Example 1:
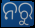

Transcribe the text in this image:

ନରୁ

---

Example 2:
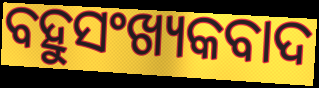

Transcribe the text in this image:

ବହୁସଂଖ୍ୟକବାଦ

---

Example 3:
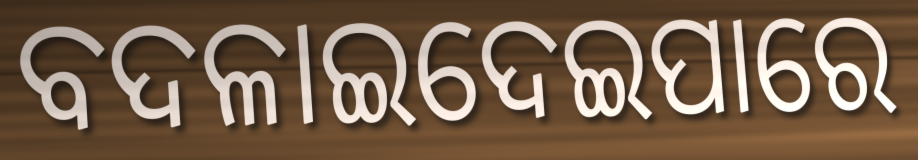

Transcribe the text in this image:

ବଦଳାଇଦେଇପାରେ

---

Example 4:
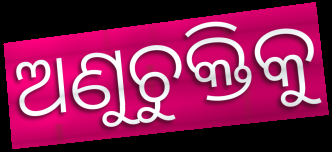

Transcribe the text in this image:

ଅଣୁଚୁକ୍ତିକୁ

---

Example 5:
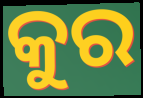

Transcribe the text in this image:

କୁର